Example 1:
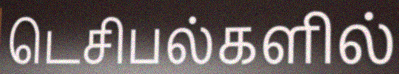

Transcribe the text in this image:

டெசிபல்களில்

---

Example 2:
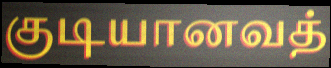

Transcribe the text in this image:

குடியானவத்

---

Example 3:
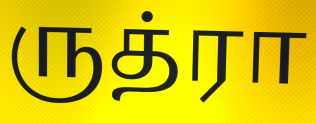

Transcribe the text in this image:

ருத்ரா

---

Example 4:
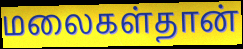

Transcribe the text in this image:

மலைகள்தான்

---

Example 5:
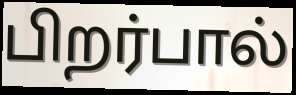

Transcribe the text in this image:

பிறர்பால்